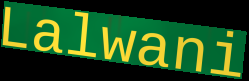
Lalwani